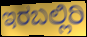
ಇರಬಲ್ಲಿರಿ